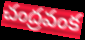
చంద్రవంక